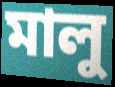
মালু